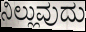
ನಿಲ್ಲುವುದು